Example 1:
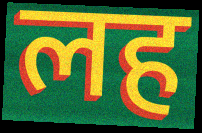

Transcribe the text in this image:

लह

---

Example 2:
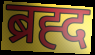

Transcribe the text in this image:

ब्रह्द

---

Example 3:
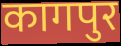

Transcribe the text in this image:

कागपुर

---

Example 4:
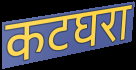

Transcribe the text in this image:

कटघरा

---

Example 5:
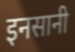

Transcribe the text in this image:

इनसानी